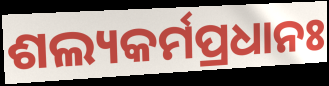
ଶଲ୍ୟକର୍ମପ୍ରଧାନଃ